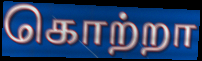
கொற்றா